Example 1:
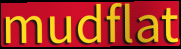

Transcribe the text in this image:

mudflat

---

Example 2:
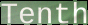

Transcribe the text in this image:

Tenth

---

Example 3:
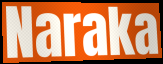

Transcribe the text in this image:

Naraka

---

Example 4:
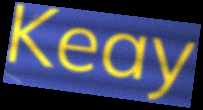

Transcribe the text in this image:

Keay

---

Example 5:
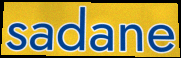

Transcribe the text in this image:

sadane